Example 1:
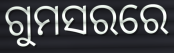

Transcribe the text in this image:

ଗୁମସରରେ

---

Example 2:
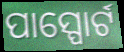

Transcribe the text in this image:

ପାସ୍ପୋର୍ଟ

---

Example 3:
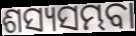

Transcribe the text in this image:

ଶସ୍ୟସମ୍ଭବା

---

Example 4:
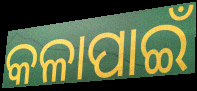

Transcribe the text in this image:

କଳାପାଇଁ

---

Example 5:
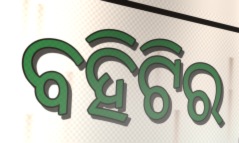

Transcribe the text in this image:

ବହିଟିର